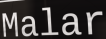
Malar